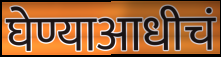
घेण्याआधीचं